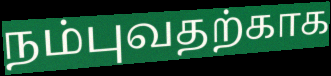
நம்புவதற்காக